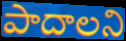
పాదాలని